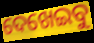
ଦେଖେଇବୁ